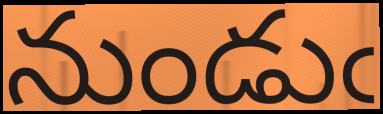
నుండుఁ